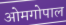
ओमगोपाल